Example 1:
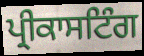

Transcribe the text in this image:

ਪ੍ਰੀਕਾਸਟਿੰਗ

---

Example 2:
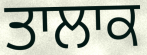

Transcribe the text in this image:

ਤਾਲਾਕ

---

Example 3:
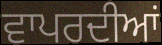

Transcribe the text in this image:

ਵਾਪਰਦੀਆਂ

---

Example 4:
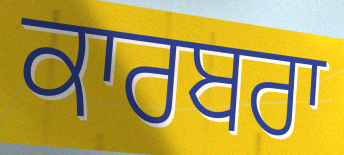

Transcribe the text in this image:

ਕਾਰਬਰਾ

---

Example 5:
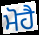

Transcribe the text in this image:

ਮੋਹੈ